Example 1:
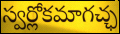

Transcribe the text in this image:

స్వర్లోకమాగచ్ఛ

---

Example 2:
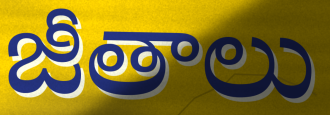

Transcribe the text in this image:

జీతాలు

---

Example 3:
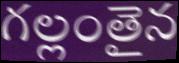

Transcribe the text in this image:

గల్లంతైన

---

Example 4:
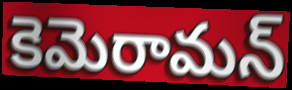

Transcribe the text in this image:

కెమెరామన్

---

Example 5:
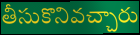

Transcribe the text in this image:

తీసుకొనివచ్చారు